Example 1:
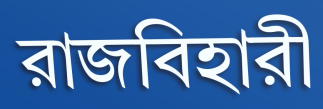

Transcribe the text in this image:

রাজবিহারী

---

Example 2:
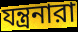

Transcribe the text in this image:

যন্ত্রনারা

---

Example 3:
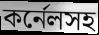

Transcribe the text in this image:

কর্নেলসহ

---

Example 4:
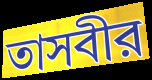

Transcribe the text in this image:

তাসবীর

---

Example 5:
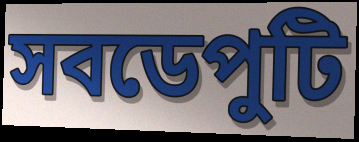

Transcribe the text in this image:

সবডেপুটি